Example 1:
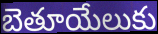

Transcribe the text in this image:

బెతూయేలుకు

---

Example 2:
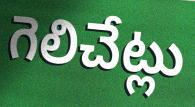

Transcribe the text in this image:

గెలిచేట్లు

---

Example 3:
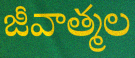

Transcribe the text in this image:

జీవాత్మల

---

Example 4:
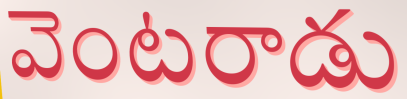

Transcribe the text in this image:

వెంటరాడు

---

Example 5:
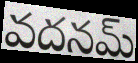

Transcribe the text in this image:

వదనమ్